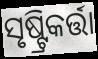
ସୃଷ୍ଟ୍ରିକର୍ତ୍ତା